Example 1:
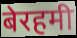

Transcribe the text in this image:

बेरहमी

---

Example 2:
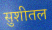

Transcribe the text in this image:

सुशीतल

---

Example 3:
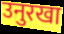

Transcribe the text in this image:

उनुरखा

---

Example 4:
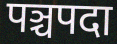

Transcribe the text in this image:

पञ्चपदा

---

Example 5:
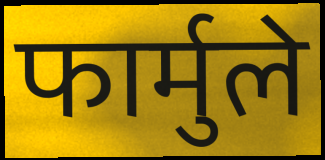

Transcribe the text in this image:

फार्मुले